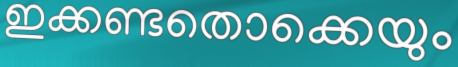
ഇക്കണ്ടതൊക്കെയും